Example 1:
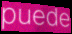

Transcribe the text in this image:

puede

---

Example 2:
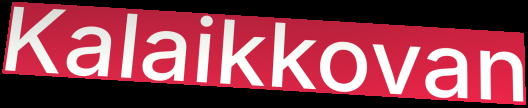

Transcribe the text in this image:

Kalaikkovan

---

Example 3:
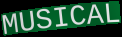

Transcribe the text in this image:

MUSICAL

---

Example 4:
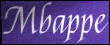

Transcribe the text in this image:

Mbappe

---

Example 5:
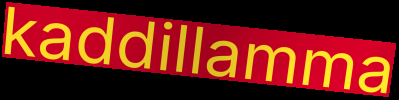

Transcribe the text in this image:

kaddillamma